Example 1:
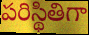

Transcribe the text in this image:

పరిస్థితిగా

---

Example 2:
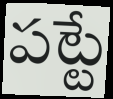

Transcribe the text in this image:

పట్టే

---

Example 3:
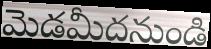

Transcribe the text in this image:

మెడమీదనుండి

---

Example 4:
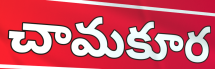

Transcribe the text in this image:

చామకూర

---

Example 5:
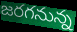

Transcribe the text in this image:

జరగనున్న